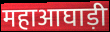
महाआघाड़ी